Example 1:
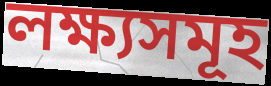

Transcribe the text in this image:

লক্ষ্যসমূহ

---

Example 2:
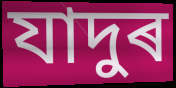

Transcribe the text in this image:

যাদুৰ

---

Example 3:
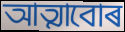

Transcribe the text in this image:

আত্মাবোৰ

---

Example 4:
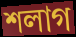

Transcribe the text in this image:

শলাগ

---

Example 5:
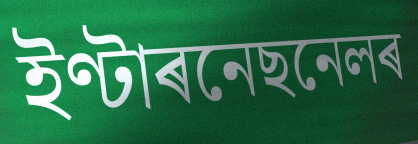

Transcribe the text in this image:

ইণ্টাৰনেছনেলৰ